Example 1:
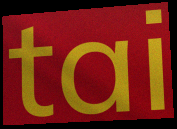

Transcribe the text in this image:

tai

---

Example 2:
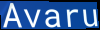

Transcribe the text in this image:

Avaru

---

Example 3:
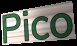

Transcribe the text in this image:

Pico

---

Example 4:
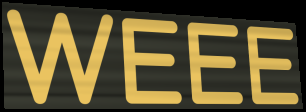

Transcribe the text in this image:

WEEE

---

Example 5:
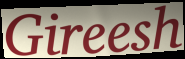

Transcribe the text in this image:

Gireesh